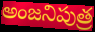
అంజనిపుత్ర